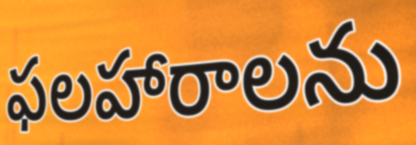
ఫలహారాలను